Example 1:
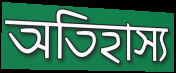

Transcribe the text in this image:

অতিহাস্য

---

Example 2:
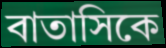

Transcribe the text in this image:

বাতাসিকে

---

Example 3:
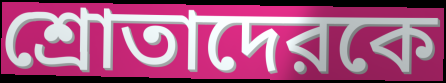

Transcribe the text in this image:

শ্রোতাদেরকে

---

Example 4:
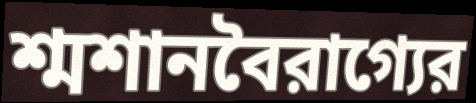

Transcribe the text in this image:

শ্মশানবৈরাগ্যের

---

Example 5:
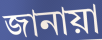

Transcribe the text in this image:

জানায়া